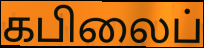
கபிலைப்